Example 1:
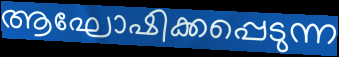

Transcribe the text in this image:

ആഘോഷിക്കപ്പെടുന്ന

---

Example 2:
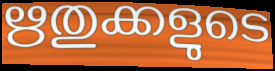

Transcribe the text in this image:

ഋതുക്കളുടെ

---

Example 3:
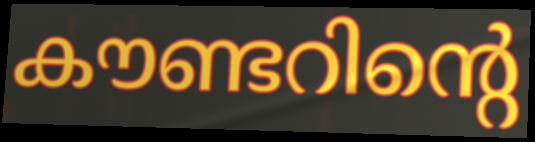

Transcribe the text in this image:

കൗണ്ടറിന്റെ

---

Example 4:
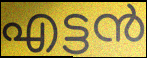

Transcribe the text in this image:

എട്ടൻ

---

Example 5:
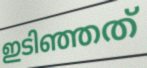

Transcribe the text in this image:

ഇടിഞ്ഞത്